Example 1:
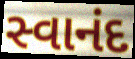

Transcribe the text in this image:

સ્વાનંદ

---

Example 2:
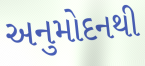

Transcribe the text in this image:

અનુમોદનથી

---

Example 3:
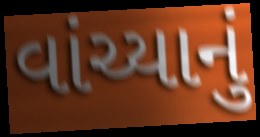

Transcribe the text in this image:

વાંચ્યાનું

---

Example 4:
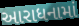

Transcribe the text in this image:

આરાધનામાં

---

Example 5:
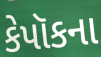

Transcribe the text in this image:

કેપૉકના